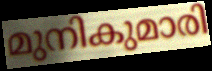
മുനികുമാരി